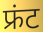
फ्रंट